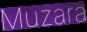
Muzara